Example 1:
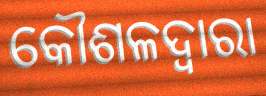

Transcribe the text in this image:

କୌଶଳଦ୍ୱାରା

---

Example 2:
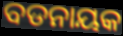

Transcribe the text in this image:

ବଡନାୟକ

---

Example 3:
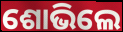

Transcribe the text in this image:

ଶୋଭିଲେ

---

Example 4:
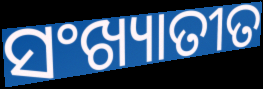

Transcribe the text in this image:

ସଂଖ୍ୟାତୀତ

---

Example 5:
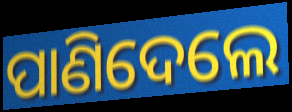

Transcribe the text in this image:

ପାଣିଦେଲେ